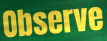
Observe